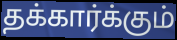
தக்கார்க்கும்